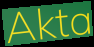
Akta